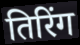
तिरिंग